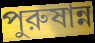
পুরুষান্ন